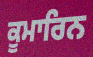
ਕੂਮਾਰਿਨ